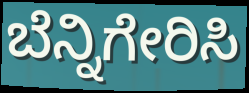
ಬೆನ್ನಿಗೇರಿಸಿ